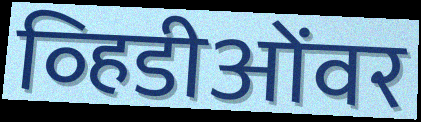
व्हिडीओंवर